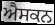
ਐਸਕਨ